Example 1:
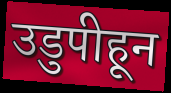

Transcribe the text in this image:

उडुपीहून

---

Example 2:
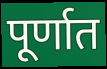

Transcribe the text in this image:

पूर्णात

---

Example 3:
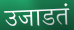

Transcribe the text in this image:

उजाडतं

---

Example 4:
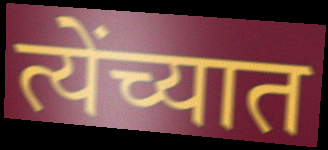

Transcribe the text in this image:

त्येंच्यात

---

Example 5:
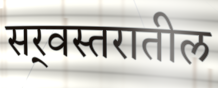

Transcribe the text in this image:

सर्वस्तरातील